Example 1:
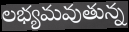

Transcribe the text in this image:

లభ్యమవుతున్న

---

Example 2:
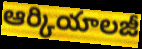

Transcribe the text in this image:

ఆర్కియాలజీ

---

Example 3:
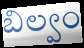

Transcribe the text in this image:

బిల్వం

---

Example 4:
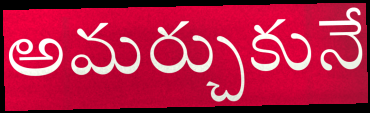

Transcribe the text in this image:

అమర్చుకునే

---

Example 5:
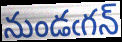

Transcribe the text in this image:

నుండఁగన్